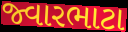
જ્વારભાટા